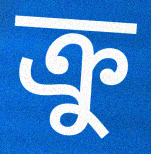
ক্রু